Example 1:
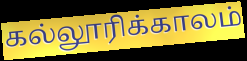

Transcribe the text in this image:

கல்லூரிக்காலம்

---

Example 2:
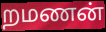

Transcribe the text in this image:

றமணன்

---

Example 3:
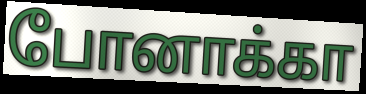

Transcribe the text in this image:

போனாக்கா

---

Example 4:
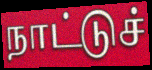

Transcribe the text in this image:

நாட்டுச்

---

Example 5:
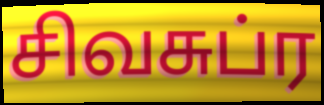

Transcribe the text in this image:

சிவசுப்ர